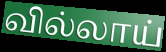
வில்லாய்